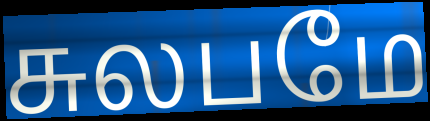
சுலபமே